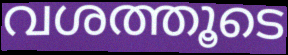
വശത്തൂടെ